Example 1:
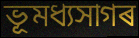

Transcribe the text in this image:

ভূমধ্যসাগৰ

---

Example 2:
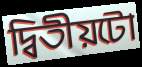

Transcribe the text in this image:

দ্বিতীয়টো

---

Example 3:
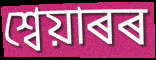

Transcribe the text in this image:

শ্বেয়াৰৰ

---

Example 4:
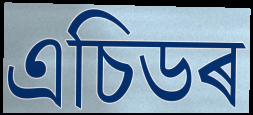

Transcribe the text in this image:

এচিডৰ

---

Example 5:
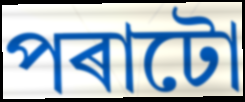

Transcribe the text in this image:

পৰাটো